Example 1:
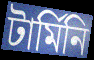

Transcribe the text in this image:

টার্মিনি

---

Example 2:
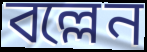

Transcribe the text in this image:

বল্লেন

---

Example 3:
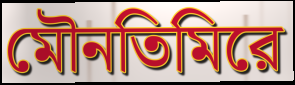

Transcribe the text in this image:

মৌনতিমিরে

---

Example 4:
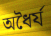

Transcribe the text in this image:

অধৈর্য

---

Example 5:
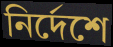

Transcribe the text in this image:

নির্দেশে